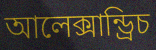
আলেক্সান্ড্রিচ